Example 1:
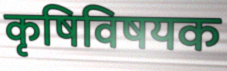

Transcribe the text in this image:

कृषिविषयक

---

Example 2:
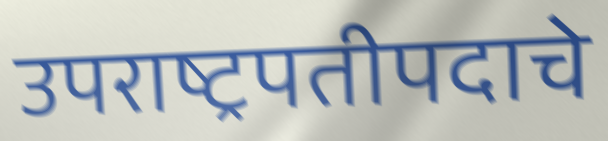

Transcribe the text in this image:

उपराष्ट्रपतीपदाचे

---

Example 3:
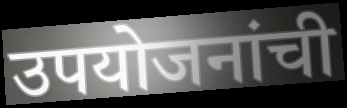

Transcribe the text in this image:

उपयोजनांची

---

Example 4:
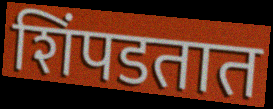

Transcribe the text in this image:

शिंपडतात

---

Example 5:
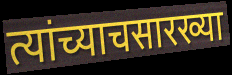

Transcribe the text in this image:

त्यांच्याचसारख्या